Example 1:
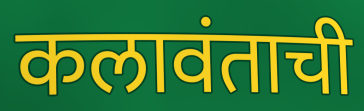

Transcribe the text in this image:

कलावंताची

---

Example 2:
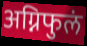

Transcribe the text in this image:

अग्निफुलं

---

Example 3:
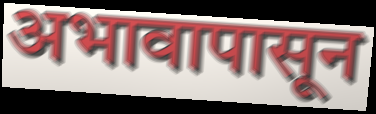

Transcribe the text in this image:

अभावापासून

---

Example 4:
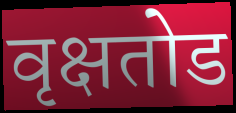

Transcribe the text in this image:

वृक्षतोड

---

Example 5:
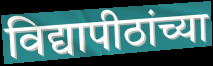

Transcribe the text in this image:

विद्यापीठांच्या